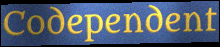
Codependent